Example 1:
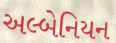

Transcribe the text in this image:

અલ્બેનિયન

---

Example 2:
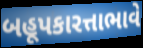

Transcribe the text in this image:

બહૂપકારત્તાભાવે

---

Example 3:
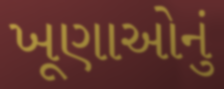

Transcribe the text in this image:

ખૂણાઓનું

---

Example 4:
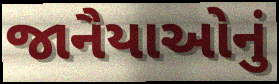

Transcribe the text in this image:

જાનૈયાઓનું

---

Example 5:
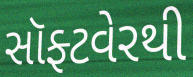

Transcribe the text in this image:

સૉફ્ટવેરથી